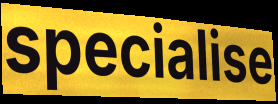
specialise